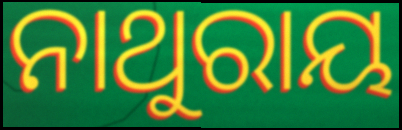
ନାଥୁରାୟ